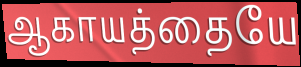
ஆகாயத்தையே